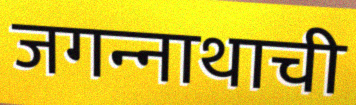
जगन्नाथाची